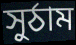
সুঠাম